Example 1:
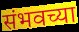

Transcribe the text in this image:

संभवच्या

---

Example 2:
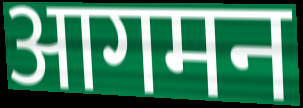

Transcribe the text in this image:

आगमन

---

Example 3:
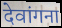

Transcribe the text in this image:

देवांगना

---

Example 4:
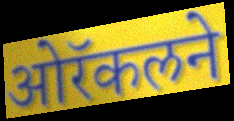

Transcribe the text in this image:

ओरॅकलने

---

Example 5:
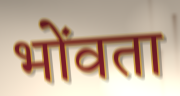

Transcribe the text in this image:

भोंवता